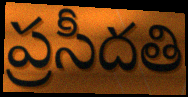
ప్రసీదతి